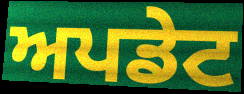
ਅਪਡੇਟ